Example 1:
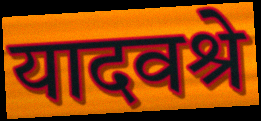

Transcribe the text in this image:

यादवश्रे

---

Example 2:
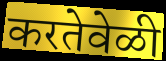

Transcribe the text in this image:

करतेवेळी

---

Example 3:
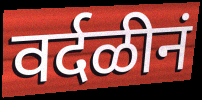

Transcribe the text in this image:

वर्दळीनं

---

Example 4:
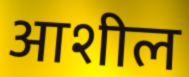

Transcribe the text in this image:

आशील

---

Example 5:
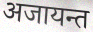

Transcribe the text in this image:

अजायन्त